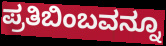
ಪ್ರತಿಬಿಂಬವನ್ನೂ